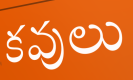
కవులు